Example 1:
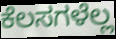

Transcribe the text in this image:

ಕೆಲಸಗಳೆಲ್ಲ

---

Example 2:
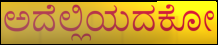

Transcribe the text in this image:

ಅದೆಲ್ಲಿಯದಕೋ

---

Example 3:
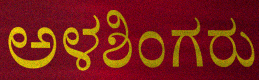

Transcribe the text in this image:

ಅಳಶಿಂಗರು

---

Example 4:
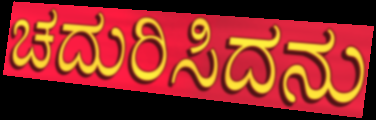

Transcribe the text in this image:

ಚದುರಿಸಿದನು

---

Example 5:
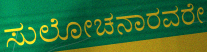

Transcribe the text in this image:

ಸುಲೋಚನಾರವರೇ